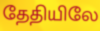
தேதியிலே